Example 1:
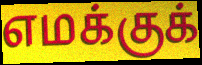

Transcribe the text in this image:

எமக்குக்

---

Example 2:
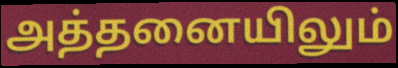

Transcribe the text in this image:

அத்தனையிலும்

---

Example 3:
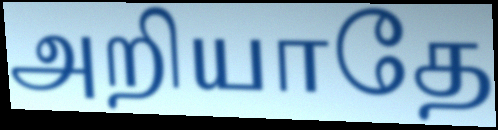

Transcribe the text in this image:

அறியாதே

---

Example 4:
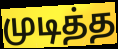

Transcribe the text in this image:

முடித்த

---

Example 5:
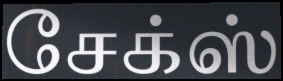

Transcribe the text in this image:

சேக்ஸ்